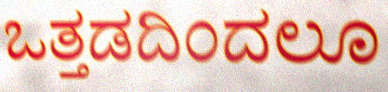
ಒತ್ತಡದಿಂದಲೂ